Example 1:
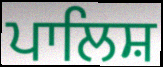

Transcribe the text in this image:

ਪਾਲਿਸ਼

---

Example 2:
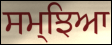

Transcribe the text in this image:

ਸਮ੍ਝਿਆ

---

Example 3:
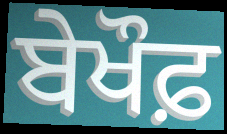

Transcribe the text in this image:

ਬੇਖੌਫ਼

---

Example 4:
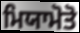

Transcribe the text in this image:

ਮਿਯਾਮੋਤੋ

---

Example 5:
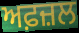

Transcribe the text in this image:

ਅਫ਼ਜ਼ਲ